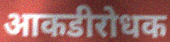
आकडीरोधक